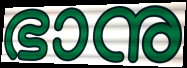
ഭാനു